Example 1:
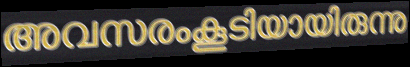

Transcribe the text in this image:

അവസരംകൂടിയായിരുന്നു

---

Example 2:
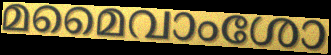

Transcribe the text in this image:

മമൈവാംശോ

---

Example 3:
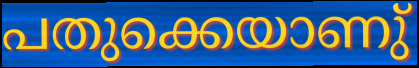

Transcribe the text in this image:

പതുക്കെയാണു്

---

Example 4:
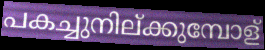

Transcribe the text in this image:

പകച്ചുനില്ക്കുമ്പോള്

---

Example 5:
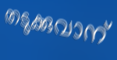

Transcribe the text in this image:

തടുക്കുവാന്